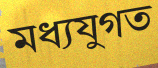
মধ্যযুগত